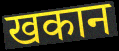
खकान